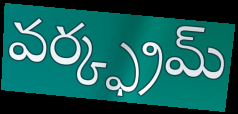
వర్క్ఫ్రమ్